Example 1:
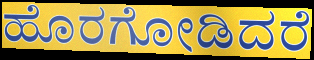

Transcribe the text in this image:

ಹೊರಗೋಡಿದರೆ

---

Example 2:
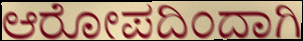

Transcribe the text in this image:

ಆರೋಪದಿಂದಾಗಿ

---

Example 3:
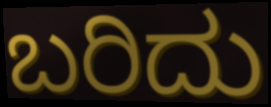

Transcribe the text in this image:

ಬರಿದು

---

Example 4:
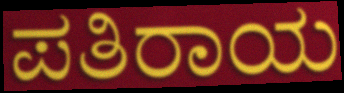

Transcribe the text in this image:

ಪತಿರಾಯ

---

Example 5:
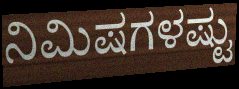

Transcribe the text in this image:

ನಿಮಿಷಗಳಷ್ಟು